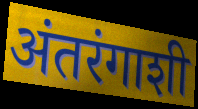
अंतरंगाशी